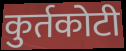
कुर्तकोटी